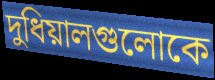
দুধিয়ালগুলোকে